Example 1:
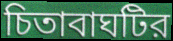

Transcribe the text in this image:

চিতাবাঘটির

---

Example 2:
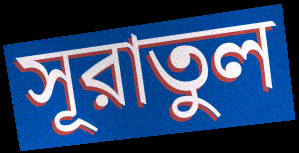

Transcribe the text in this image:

সূরাতুল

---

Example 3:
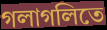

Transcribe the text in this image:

গলাগলিতে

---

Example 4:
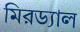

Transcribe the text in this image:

মিরড্যাল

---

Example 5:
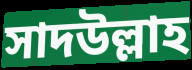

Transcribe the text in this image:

সাদউল্লাহ